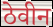
ठेवीन